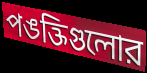
পঙক্তিগুলোর